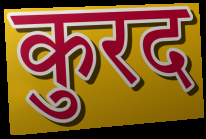
कुरद